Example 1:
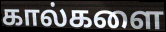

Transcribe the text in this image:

கால்களை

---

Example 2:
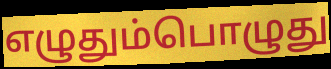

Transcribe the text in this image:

எழுதும்பொழுது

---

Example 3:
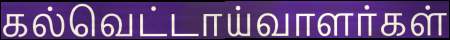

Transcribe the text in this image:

கல்வெட்டாய்வாளர்கள்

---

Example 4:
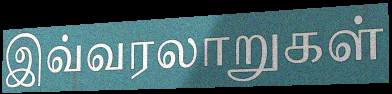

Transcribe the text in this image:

இவ்வரலாறுகள்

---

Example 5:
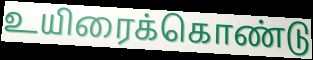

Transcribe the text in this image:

உயிரைக்கொண்டு